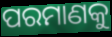
ପରମାଣକୁ